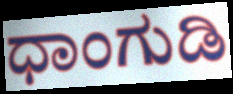
ಧಾಂಗುಡಿ